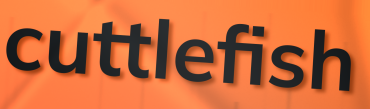
cuttlefish